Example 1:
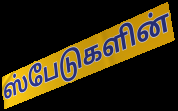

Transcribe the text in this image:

ஸ்பேடுகளின்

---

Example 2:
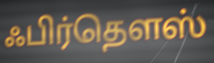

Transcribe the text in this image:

ஃபிர்தௌஸ்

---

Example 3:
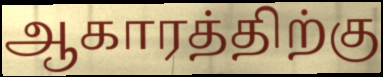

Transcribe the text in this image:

ஆகாரத்திற்கு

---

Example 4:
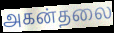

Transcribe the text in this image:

அகன்தலை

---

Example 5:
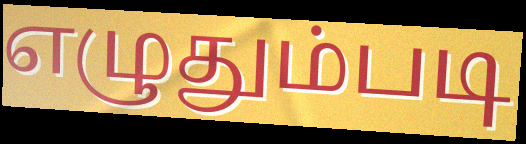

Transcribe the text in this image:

எழுதும்படி